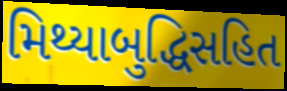
મિથ્યાબુદ્ધિસહિત